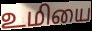
உமியை